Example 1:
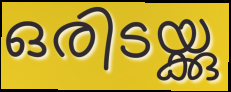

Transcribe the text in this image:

ഒരിടയ്ക്കു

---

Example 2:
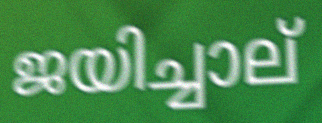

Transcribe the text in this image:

ജയിച്ചാല്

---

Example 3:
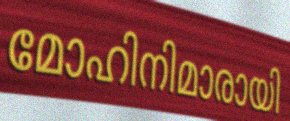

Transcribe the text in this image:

മോഹിനിമാരായി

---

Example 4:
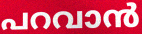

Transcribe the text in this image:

പറവാൻ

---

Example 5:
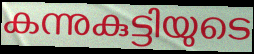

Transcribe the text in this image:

കന്നുകുട്ടിയുടെ